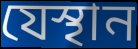
যেস্থান